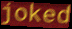
joked